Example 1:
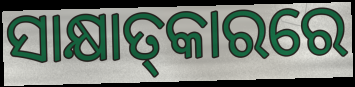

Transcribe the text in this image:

ସାକ୍ଷାତ୍‌କାରରେ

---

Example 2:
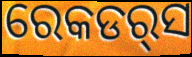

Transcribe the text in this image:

ରେକଡର୍‌ସ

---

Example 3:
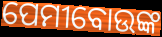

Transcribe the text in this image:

ପେମୀବୋଉଙ୍କ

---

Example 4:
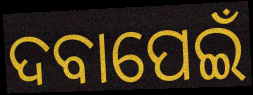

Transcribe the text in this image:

ଦବାପେଇଁ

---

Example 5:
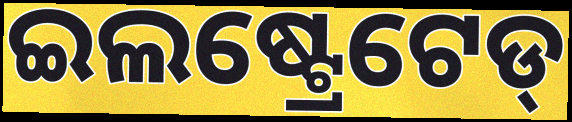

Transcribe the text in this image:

ଇଲଷ୍ଟ୍ରେଟେଡ୍